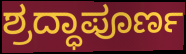
ಶ್ರದ್ಧಾಪೂರ್ಣ